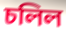
চলিল